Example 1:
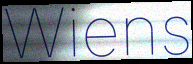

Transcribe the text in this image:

Wiens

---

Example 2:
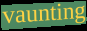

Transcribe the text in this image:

vaunting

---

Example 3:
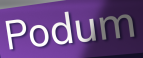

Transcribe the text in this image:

Podum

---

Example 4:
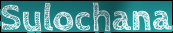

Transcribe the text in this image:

Sulochana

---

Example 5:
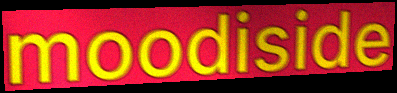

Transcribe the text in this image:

moodiside